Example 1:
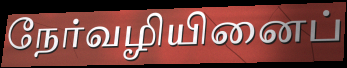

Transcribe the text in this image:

நேர்வழியினைப்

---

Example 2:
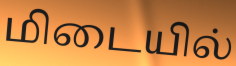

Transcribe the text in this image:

மிடையில்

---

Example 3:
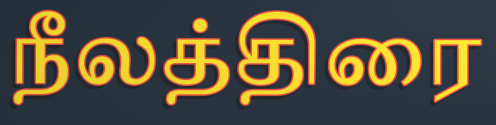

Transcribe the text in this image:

நீலத்திரை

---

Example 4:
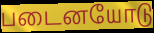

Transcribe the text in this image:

படைனயோடு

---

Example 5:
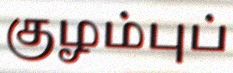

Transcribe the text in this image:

குழம்புப்